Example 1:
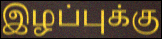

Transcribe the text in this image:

இழப்புக்கு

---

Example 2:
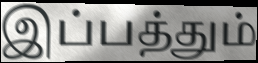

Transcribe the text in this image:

இப்பத்தும்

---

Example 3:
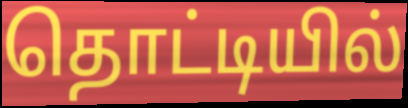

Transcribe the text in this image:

தொட்டியில்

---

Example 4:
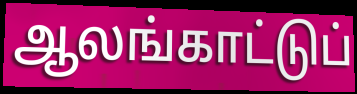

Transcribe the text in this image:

ஆலங்காட்டுப்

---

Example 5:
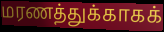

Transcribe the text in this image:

மரணத்துக்காகக்